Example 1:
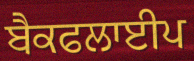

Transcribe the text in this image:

ਬੈਕਫਲਾਈਪ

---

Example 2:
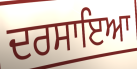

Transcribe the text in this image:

ਦਰਸਾਇਆ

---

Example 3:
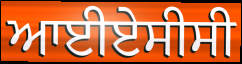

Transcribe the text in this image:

ਆਈਏਸੀਸੀ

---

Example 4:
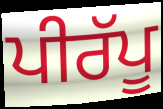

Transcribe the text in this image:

ਪੀਰੱਪੂ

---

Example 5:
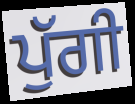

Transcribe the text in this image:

ਪੁੱਗੀ